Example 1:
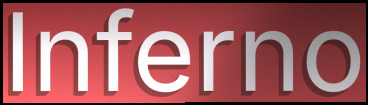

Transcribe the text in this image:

Inferno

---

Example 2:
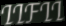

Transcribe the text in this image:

IIFII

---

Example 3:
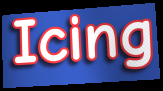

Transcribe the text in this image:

Icing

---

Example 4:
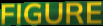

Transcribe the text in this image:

FIGURE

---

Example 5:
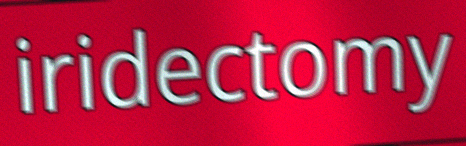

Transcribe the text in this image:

iridectomy